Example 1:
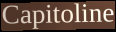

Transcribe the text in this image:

Capitoline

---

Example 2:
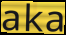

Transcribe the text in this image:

aka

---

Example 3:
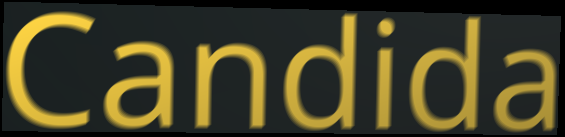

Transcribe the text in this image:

Candida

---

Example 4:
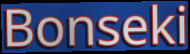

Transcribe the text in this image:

Bonseki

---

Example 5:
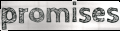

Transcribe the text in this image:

promises